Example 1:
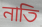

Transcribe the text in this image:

নাতি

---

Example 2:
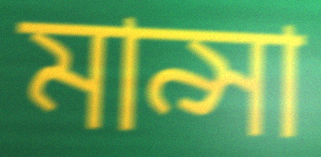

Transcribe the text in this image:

মান্সা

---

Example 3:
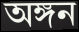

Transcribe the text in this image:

অঙ্গন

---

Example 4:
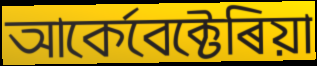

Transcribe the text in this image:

আৰ্কেবেক্টেৰিয়া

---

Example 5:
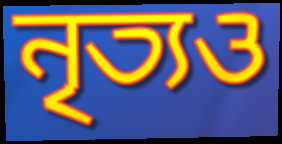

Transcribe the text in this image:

নৃত্যও